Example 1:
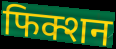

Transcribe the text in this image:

फिक्शन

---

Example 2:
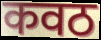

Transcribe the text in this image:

कवठ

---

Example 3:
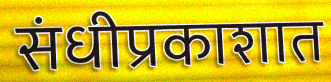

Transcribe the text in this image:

संधीप्रकाशात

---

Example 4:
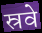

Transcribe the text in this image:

स्रवे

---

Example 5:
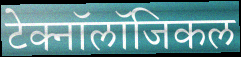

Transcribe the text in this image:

टेक्नॉलॉजिकल